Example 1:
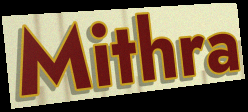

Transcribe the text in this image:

Mithra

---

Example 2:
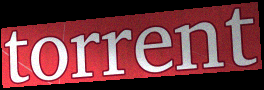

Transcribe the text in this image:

torrent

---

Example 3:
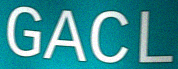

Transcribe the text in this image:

GACL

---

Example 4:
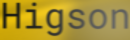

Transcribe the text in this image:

Higson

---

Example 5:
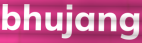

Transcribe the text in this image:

bhujang